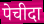
पेचीदा